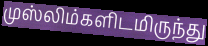
முஸ்லிம்களிடமிருந்து